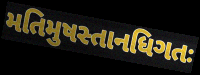
મતિમુષસ્તાનધિગતઃ